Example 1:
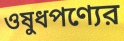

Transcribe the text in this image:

ওষুধপণ্যের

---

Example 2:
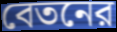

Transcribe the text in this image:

বেতনের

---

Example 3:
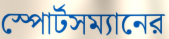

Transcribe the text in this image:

স্পোর্টসম্যানের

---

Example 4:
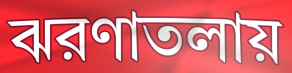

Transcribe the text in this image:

ঝরণাতলায়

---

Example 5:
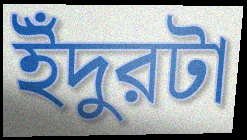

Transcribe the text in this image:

ইঁদুরটা